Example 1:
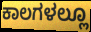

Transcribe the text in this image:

ಕಾಲಗಳಲ್ಲೂ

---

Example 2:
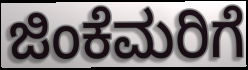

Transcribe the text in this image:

ಜಿಂಕೆಮರಿಗೆ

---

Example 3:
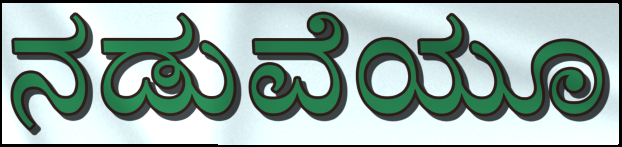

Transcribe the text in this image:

ನಡುವೆಯೂ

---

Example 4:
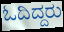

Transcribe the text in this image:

ಓದಿದ್ದರು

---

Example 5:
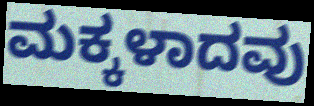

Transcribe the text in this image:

ಮಕ್ಕಳಾದವು